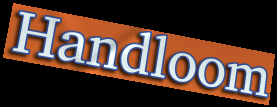
Handloom